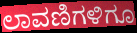
ಲಾವಣಿಗಳಿಗೂ